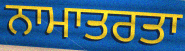
ਨਾਮਾਤਰਤਾ